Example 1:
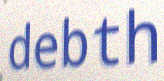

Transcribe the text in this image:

debth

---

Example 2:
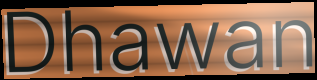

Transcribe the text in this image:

Dhawan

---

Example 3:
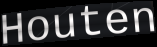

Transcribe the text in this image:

Houten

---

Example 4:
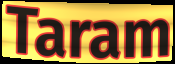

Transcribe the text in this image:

Taram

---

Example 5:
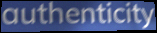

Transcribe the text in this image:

authenticity